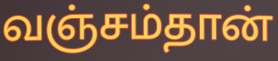
வஞ்சம்தான்